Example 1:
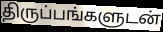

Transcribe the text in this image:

திருப்பங்களுடன்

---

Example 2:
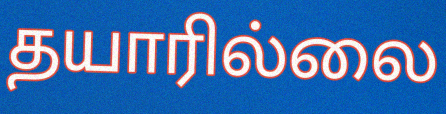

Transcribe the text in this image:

தயாரில்லை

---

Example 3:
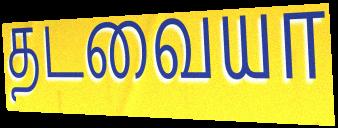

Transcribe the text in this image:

தடவையா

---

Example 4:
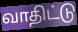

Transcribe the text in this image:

வாதிட்டு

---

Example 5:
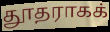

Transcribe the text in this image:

தூதராகக்